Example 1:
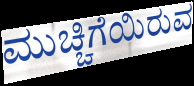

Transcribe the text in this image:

ಮುಚ್ಚಿಗೆಯಿರುವ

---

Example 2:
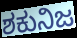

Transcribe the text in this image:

ಶಕುನಿಜ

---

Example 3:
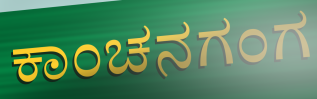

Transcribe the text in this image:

ಕಾಂಚನಗಂಗ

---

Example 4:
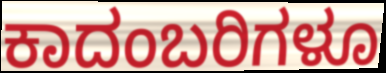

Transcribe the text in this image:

ಕಾದಂಬರಿಗಳೂ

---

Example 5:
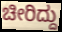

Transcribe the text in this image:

ಚೀರಿದ್ದು